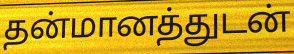
தன்மானத்துடன்